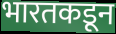
भारतकडून